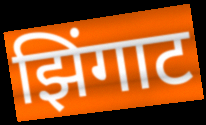
झिंगाट